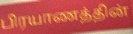
பிரயாணத்தின்